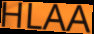
HLAA